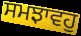
ਸਮਝਾਵਹੁ